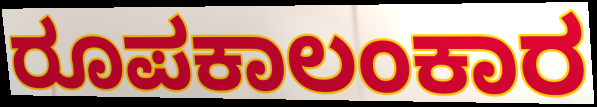
ರೂಪಕಾಲಂಕಾರ